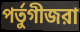
পর্তুগীজরা